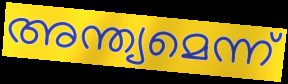
അന്ത്യമെന്ന്